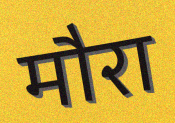
मौरा